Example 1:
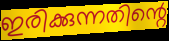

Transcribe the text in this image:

ഇരിക്കുന്നതിന്റെ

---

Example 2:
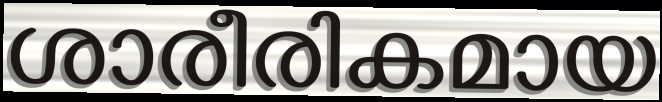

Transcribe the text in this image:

ശാരീരികമായ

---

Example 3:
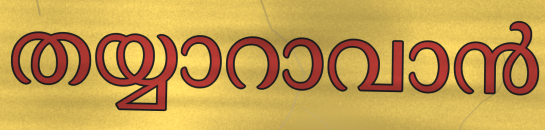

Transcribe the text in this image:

തയ്യാറാവാൻ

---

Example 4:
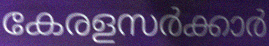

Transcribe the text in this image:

കേരളസർക്കാർ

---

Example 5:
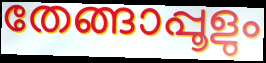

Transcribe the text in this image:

തേങ്ങാപ്പൂളും